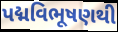
પદ્મવિભૂષણથી